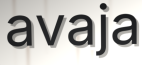
avaja